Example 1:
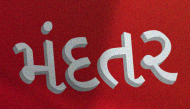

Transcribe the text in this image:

મંદતર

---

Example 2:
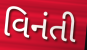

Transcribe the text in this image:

વિનંતી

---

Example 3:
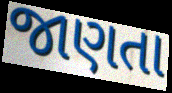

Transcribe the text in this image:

જાણતા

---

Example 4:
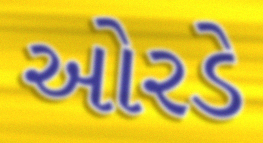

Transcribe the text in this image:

ઓરડે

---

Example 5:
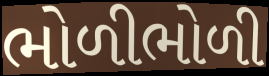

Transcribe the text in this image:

ભોળીભોળી